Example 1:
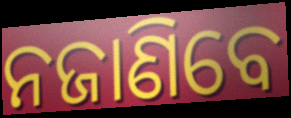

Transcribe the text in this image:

ନଜାଣିବେ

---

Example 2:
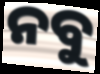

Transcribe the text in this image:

ନବୁ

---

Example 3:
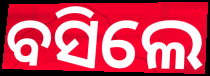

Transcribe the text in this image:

ବସିଲେ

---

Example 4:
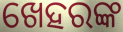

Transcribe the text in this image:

ଖେହରଙ୍କ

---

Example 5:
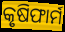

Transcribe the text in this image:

କୃଷିଫାର୍ମ